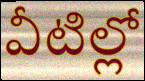
వీటిల్లో